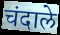
चंदाले